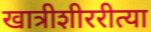
खात्रीशीररीत्या